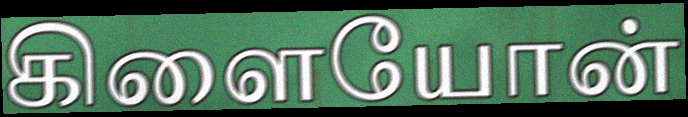
கிளையோன்